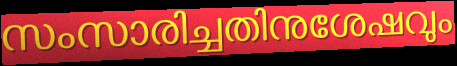
സംസാരിച്ചതിനുശേഷവും